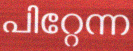
പിറ്റേന്ന